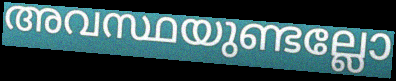
അവസ്ഥയുണ്ടല്ലോ